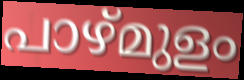
പാഴ്മുളം